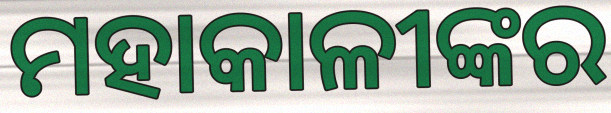
ମହାକାଳୀଙ୍କର